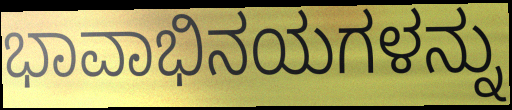
ಭಾವಾಭಿನಯಗಳನ್ನು